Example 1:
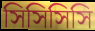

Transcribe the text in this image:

সিসিসিসি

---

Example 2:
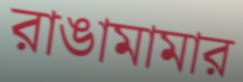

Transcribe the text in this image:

রাঙামামার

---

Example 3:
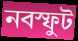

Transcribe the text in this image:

নবস্ফুট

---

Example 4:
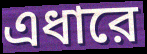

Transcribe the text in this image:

এধারে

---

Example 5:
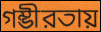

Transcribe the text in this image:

গম্ভীরতায়